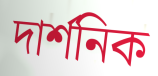
দার্শনিক